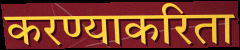
करण्याकरिता